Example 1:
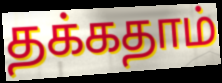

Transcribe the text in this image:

தக்கதாம்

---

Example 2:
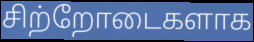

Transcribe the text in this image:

சிற்றோடைகளாக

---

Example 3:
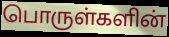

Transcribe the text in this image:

பொருள்களின்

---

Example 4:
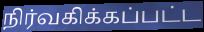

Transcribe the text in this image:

நிர்வகிக்கப்பட்ட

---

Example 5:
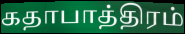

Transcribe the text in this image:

கதாபாத்திரம்